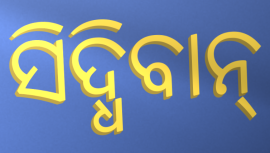
ସିଦ୍ଧିବାନ୍